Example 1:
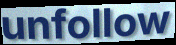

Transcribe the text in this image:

unfollow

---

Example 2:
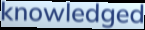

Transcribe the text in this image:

knowledged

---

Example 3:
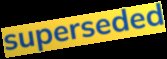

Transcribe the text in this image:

superseded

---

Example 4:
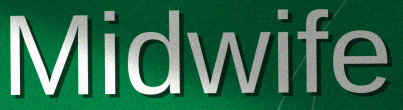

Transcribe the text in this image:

Midwife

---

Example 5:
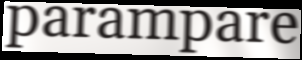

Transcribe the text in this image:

parampare